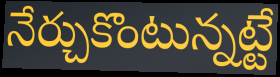
నేర్చుకొంటున్నట్టే